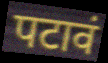
पटावं